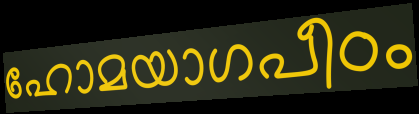
ഹോമയാഗപീഠം